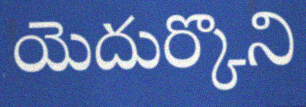
యెదుర్కొని